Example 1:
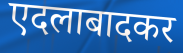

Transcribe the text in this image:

एदलाबादकर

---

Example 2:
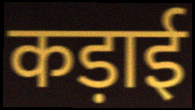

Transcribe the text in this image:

कड़ाई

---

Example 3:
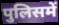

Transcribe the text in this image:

पुलिसमें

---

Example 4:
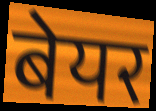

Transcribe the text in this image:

बेयर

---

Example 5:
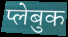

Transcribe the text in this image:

प्लेबुक